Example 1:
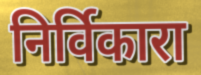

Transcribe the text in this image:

निर्विकारा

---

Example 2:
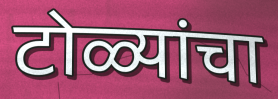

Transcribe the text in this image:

टोळ्यांचा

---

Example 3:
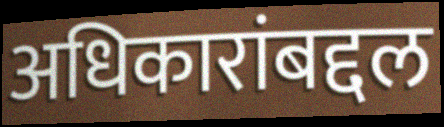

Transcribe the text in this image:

अधिकारांबद्दल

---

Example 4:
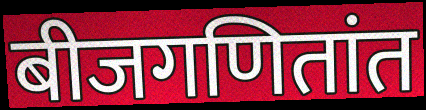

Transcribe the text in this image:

बीजगणितांत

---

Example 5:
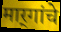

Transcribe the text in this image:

मार्गांचे